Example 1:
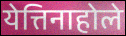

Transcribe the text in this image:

येत्तिनाहोले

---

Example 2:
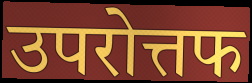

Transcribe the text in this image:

उपरोत्तफ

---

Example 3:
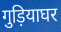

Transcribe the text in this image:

गुड़ियाघर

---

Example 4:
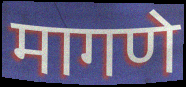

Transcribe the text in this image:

मागणे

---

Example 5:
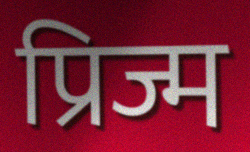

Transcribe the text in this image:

प्रिज्म